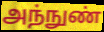
அந்நுண்